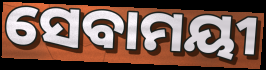
ସେବାମୟୀ